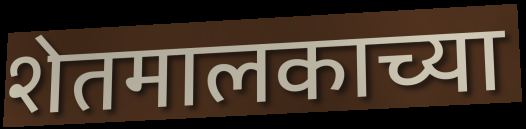
शेतमालकाच्या